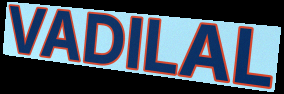
VADILAL